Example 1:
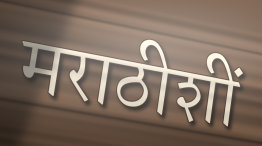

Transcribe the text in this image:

मराठीशीं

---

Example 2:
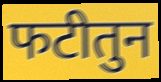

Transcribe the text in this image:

फटीतुन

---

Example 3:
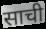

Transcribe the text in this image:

साची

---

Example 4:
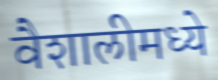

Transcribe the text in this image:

वैशालीमध्ये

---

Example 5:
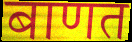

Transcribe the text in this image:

बाणत